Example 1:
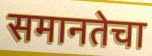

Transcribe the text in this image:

समानतेचा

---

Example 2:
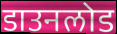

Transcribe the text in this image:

डाउनलोड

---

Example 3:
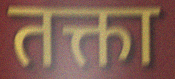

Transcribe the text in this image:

तक्ता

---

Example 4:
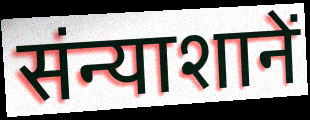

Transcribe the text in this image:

संन्याशानें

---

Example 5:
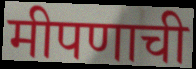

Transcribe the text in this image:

मीपणाची